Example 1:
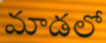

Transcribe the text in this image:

మాడలో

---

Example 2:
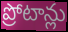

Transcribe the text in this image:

ప్రోటాన్లు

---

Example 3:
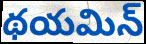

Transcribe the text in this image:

థయమిన్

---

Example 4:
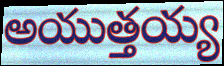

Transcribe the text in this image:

అయుత్తయ్య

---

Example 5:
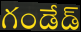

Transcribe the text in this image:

గండేడ్